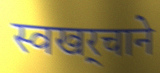
स्वखर्चाने